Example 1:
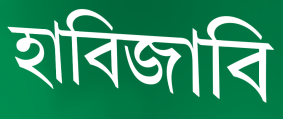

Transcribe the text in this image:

হাবিজাবি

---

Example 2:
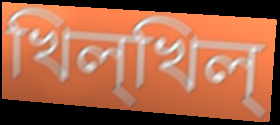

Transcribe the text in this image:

খিল্খিল্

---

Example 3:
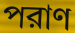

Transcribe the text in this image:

পরাণ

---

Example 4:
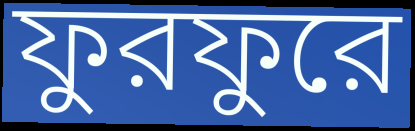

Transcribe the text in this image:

ফুরফুরে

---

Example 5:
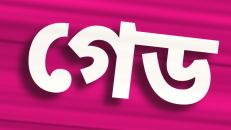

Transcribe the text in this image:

গেড